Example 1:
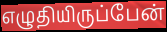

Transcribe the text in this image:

எழுதியிருப்பேன்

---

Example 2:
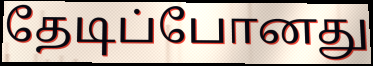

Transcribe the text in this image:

தேடிப்போனது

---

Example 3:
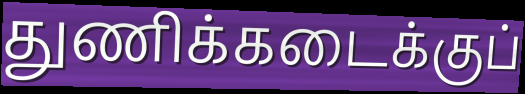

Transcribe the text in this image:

துணிக்கடைக்குப்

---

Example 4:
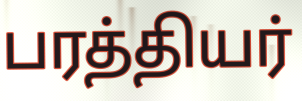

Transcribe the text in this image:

பரத்தியர்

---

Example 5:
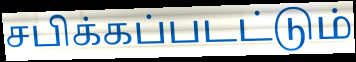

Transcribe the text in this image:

சபிக்கப்படட்டும்